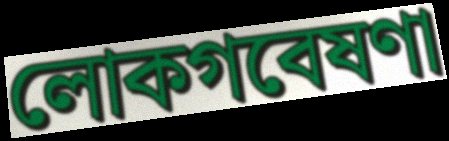
লোকগবেষণা